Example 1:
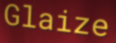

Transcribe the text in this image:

Glaize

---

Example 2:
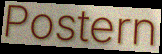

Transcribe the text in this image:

Postern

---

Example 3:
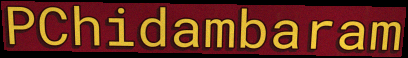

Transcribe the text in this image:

PChidambaram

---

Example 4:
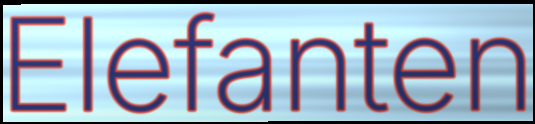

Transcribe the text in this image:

Elefanten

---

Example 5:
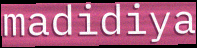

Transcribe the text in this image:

madidiya